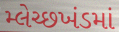
મ્લેચ્છખંડમાં